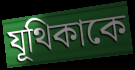
যূথিকাকে